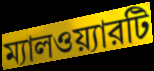
ম্যালওয়্যারটি